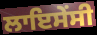
ਲਾਇਸੇਂਸੀ